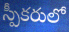
స్పీకరులో